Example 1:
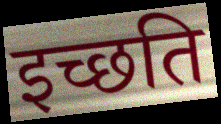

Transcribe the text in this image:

इच्छति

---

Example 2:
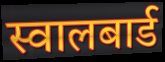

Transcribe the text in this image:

स्वालबार्ड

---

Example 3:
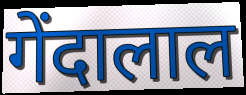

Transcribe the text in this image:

गेंदालाल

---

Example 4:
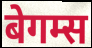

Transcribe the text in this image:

बेगम्स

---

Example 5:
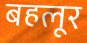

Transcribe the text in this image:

बहलूर